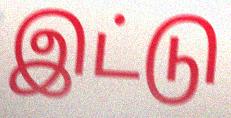
இட்டு